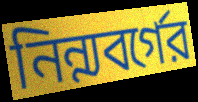
নিন্মবর্গের